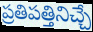
ప్రతిపత్తినిచ్చే